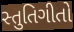
સ્તુતિગીતો